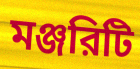
মঞ্জরিটি